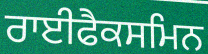
ਰਾਈਫੈਕਸਮਿਨ